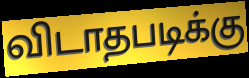
விடாதபடிக்கு